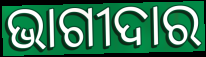
ଭାଗୀଦାର